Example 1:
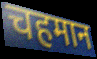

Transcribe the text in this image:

चहमान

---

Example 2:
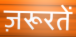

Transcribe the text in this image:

ज़रूरतें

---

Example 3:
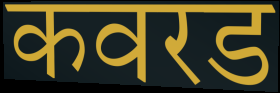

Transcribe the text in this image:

कवरड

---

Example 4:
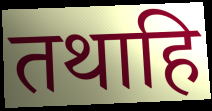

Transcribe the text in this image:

तथाहि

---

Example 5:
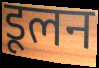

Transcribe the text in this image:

डूलन